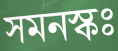
সমনস্কঃ